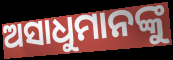
ଅସାଧୁମାନଙ୍କୁ